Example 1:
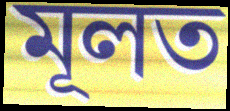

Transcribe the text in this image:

মূলত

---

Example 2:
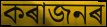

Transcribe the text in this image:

কৰাজনৰ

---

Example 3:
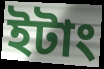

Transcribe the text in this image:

ইটাং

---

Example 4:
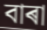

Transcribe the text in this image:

বাৰা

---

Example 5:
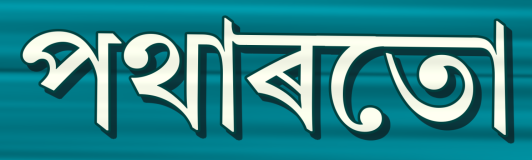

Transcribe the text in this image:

পথাৰতো